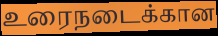
உரைநடைக்கான